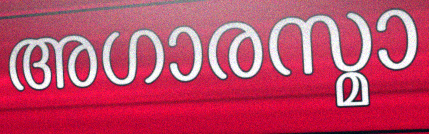
അഗാരസ്മാ